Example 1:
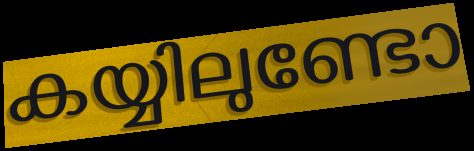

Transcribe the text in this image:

കയ്യിലുണ്ടോ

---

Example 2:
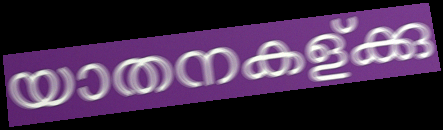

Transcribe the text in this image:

യാതനകള്ക്കു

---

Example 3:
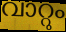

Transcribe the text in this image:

വാറ്റും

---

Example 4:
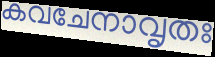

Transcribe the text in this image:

കവചേനാവൃതഃ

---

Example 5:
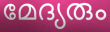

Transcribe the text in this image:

മേദ്യരും